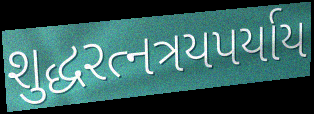
શુદ્ધરત્નત્રયપર્યાય